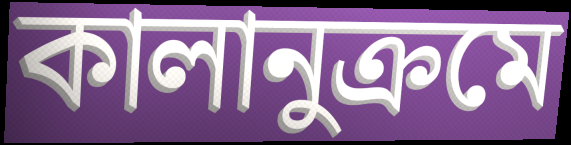
কালানুক্রমে